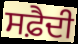
ਸਫ਼ੈਦੀ